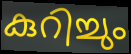
കുറിച്ചും